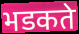
भडकते